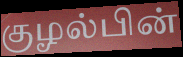
குழல்பின்